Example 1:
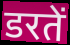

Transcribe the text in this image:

डरतें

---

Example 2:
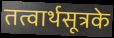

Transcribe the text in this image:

तत्वार्थसूत्रके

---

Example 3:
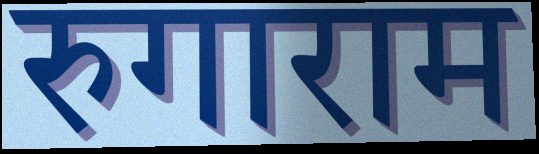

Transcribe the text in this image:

रुगाराम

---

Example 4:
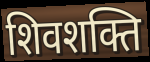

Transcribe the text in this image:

शिवशक्ति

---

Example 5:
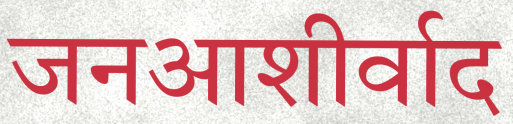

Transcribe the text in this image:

जनआशीर्वाद